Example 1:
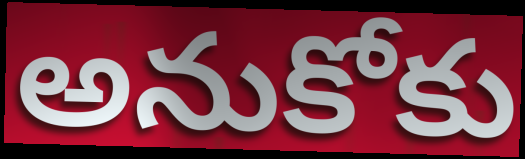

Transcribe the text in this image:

అనుకోకు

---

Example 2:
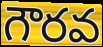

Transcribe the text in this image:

గౌరవ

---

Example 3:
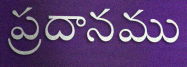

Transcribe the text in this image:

ప్రదానము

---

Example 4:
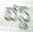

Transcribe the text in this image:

బేస్డ్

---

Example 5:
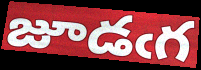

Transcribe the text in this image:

జూడఁగ